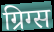
ग्रिग्स